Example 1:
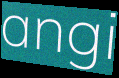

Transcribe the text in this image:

angi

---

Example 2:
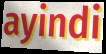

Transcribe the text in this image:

ayindi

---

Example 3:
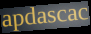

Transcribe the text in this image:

apdascac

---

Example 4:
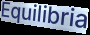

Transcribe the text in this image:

Equilibria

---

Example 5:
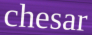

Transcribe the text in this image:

chesar